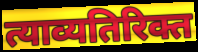
त्याव्यतिरिक्त